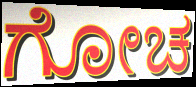
ಗೋಚ